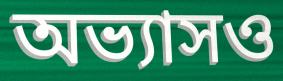
অভ্যাসও